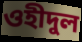
ওহীদুল